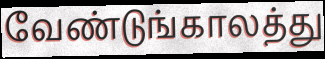
வேண்டுங்காலத்து